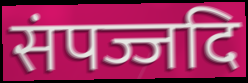
संपज्जदि